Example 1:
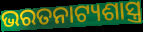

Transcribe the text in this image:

ଭରତନାଟ୍ୟଶାସ୍ତ୍ର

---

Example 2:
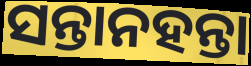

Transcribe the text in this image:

ସନ୍ତାନହନ୍ତା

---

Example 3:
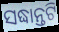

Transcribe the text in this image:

ସଦ୍ଧାନ୍ତଟି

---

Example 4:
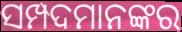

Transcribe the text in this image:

ସମ୍ପଦମାନଙ୍କର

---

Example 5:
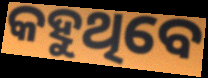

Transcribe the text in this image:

କହୁଥିବେ